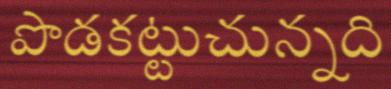
పొడకట్టుచున్నది